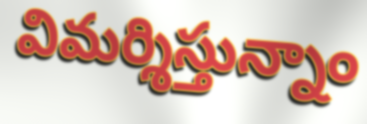
విమర్శిస్తున్నాం